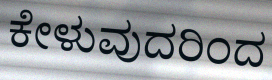
ಕೇಳುವುದರಿಂದ